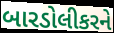
બારડોલીકરને